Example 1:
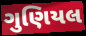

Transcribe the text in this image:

ગુણિયલ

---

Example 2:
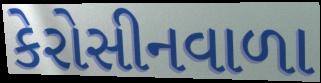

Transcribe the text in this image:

કેરોસીનવાળા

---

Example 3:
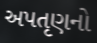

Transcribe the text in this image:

અપતૃણનો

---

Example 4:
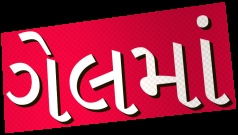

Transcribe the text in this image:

ગેલમાં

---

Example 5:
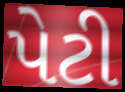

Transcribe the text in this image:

પેટી